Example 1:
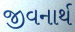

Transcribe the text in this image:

જીવનાર્થ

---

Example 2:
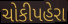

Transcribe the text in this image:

ચોકીપહેરા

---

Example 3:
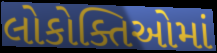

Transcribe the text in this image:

લોકોક્તિઓમાં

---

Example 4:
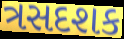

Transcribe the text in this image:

ત્રસદશક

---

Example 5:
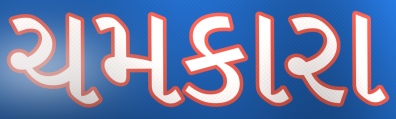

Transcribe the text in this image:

ચમકારા